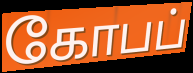
கோபப்